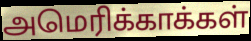
அமெரிக்காக்கள்